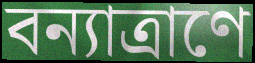
বন্যাত্রাণে